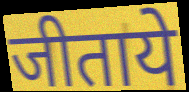
जीताये